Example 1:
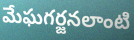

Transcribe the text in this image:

మేఘగర్జనలాంటి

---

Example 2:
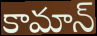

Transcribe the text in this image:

కామాన్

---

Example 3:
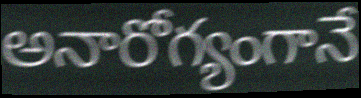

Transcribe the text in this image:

అనారోగ్యంగానే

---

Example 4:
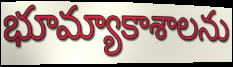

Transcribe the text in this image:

భూమ్యాకాశాలను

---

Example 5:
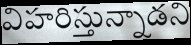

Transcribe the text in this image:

విహరిస్తున్నాడని